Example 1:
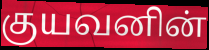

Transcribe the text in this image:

குயவனின்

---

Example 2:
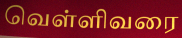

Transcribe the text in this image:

வெள்ளிவரை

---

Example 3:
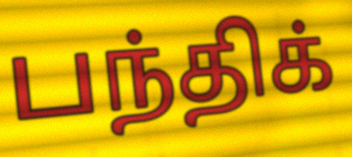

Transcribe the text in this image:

பந்திக்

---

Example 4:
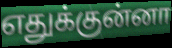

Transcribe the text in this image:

எதுக்குன்னா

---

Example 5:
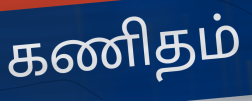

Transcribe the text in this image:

கணிதம்